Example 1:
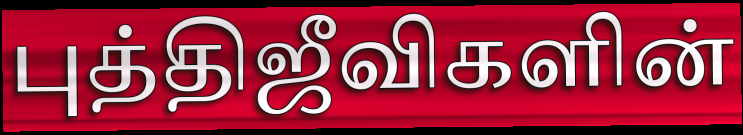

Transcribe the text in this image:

புத்திஜீவிகளின்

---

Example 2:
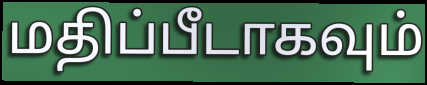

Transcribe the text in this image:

மதிப்பீடாகவும்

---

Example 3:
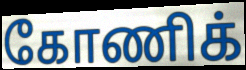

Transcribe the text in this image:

கோணிக்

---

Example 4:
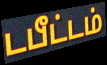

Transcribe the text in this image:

டபீட்டம்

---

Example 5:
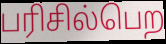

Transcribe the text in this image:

பரிசில்பெற